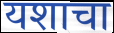
यशाचा